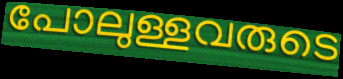
പോലുള്ളവരുടെ